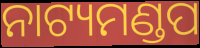
ନାଟ୍ୟମଣ୍ଡପ